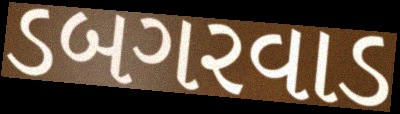
ડબગરવાડ